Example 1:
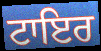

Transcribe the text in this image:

ਟਾਇਰ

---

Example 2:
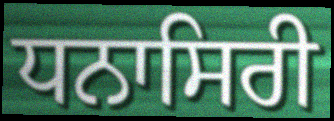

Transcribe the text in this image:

ਧਨਾਸਿਰੀ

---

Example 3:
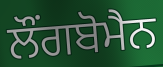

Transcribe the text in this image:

ਲੌਂਗਬੋਮੈਨ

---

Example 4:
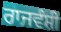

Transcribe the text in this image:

ਰਾਜਵੰਸ਼ੀ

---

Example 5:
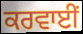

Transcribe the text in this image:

ਕਰਵਾਈਂ